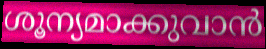
ശൂന്യമാക്കുവാൻ